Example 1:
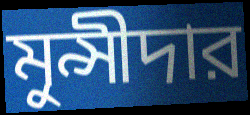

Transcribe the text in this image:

মুন্সীদার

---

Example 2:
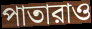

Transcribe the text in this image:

পাতারাও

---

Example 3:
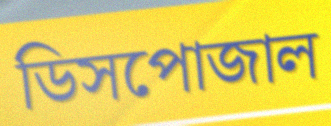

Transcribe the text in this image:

ডিসপোজাল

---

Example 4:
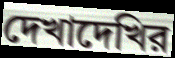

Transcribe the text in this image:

দেখাদেখির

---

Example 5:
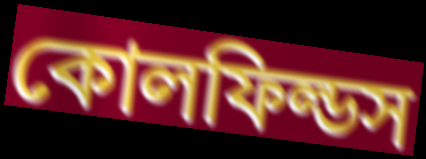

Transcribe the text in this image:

কোলফিল্ডস